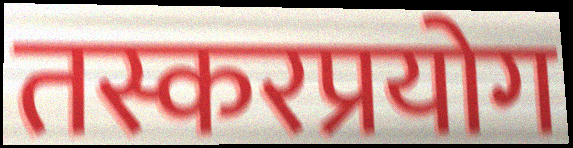
तस्करप्रयोग